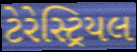
ટેરેસ્ટ્રિયલ